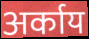
अर्काय